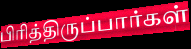
பிரித்திருப்பார்கள்